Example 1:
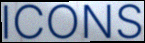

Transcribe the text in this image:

ICONS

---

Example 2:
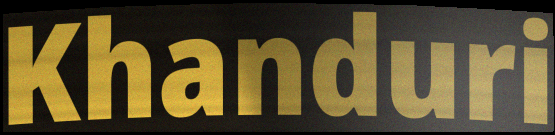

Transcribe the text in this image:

Khanduri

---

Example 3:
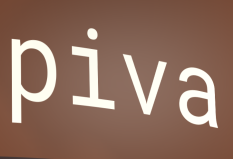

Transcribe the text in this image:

piva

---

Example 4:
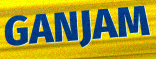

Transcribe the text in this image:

GANJAM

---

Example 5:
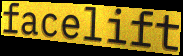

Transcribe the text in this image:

facelift